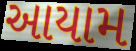
આયામ